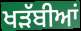
ਖੜੱਬੀਆਂ